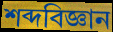
শব্দবিজ্ঞান